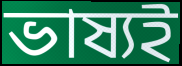
ভাষ্যই